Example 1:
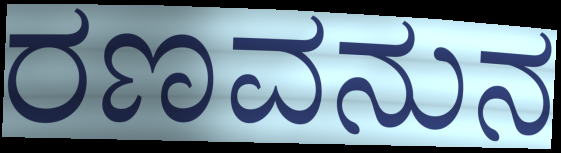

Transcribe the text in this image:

ರಣವನುನ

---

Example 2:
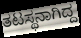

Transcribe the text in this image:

ತಟಸ್ಥನಾಗಿದ್ದ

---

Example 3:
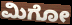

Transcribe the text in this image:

ಮಿಗೋ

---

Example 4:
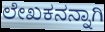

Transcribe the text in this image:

ಲೇಖಕನನ್ನಾಗಿ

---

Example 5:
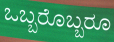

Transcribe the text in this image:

ಒಬ್ಬರೊಬ್ಬರೂ